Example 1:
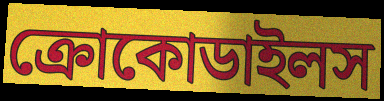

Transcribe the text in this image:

ক্রোকোডাইলস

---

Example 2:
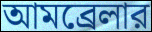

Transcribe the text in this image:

আমব্রেলার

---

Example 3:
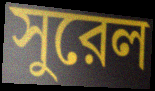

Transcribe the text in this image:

সুরেল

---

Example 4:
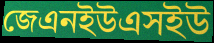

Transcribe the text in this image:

জেএনইউএসইউ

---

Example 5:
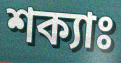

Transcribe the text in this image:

শক্যাঃ